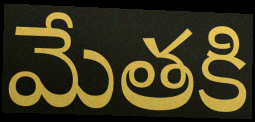
మేతకి